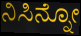
ನಿಸಿನ್ನೋ